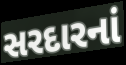
સરદારનાં